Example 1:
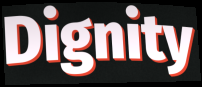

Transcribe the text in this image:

Dignity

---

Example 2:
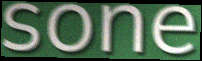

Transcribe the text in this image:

sone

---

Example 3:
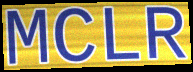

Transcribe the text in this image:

MCLR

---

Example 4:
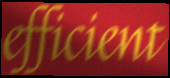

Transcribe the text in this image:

efficient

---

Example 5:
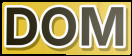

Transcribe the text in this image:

DOM